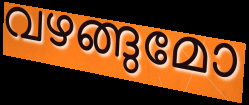
വഴങ്ങുമോ